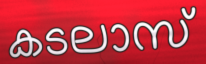
കടലാസ്